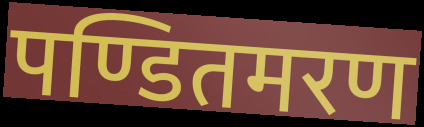
पण्डितमरण